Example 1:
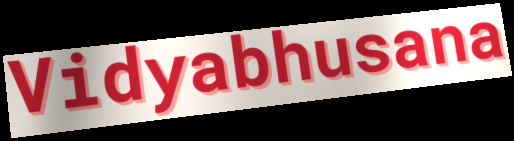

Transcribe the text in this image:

Vidyabhusana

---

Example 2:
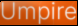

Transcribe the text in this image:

Umpire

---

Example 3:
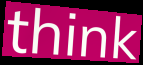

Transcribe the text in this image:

think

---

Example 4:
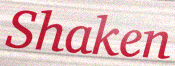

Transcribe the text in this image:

Shaken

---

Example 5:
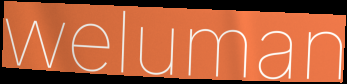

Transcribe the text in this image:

weluman